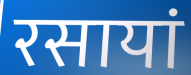
रसायां